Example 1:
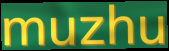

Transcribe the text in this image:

muzhu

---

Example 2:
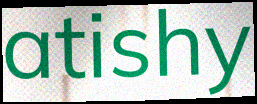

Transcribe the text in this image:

atishy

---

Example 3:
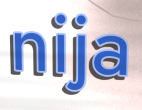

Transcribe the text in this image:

nija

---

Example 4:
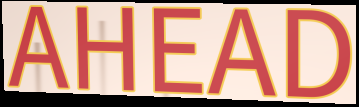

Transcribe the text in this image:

AHEAD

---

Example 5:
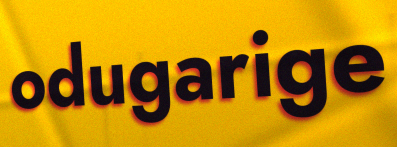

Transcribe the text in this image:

odugarige